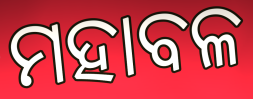
ମହାବଳ